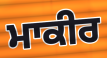
ਮਾਕੀਰ